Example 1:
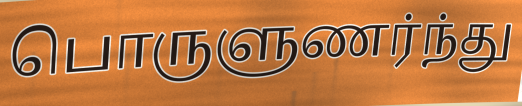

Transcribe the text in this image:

பொருளுணர்ந்து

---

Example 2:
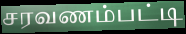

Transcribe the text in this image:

சரவணம்பட்டி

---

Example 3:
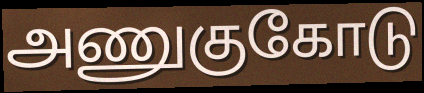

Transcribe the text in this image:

அணுகுகோடு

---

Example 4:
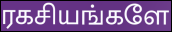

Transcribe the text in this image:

ரகசியங்களே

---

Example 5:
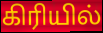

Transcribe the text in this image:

கிரியில்